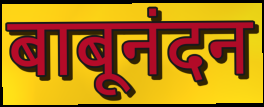
बाबूनंदन